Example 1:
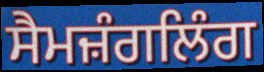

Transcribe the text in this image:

ਸੈਮਜ਼ੰਗਲਿੰਗ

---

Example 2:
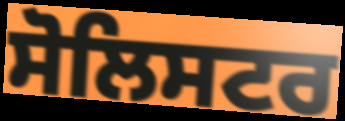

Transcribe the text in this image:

ਸੋਲਿਸਟਰ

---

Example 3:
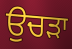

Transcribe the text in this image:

ਉਚੜਾ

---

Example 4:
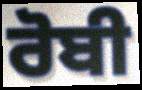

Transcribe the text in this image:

ਰੋਬੀ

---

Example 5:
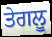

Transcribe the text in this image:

ਤੇਗਲੂ